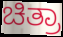
ಚಿತ್ರಾ